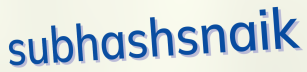
subhashsnaik